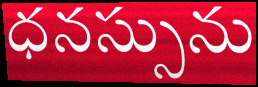
ధనస్సును